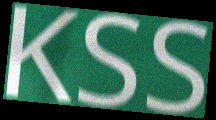
KSS